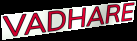
VADHARE